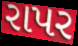
રાપર